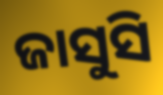
ଜାସୁସି